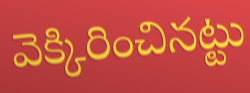
వెక్కిరించినట్టు